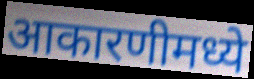
आकारणीमध्ये